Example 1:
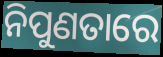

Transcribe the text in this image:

ନିପୁଣତାରେ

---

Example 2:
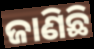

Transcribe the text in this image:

ଜାଣିଛି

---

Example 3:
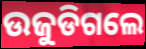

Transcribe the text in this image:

ଉଜୁଡିଗଲେ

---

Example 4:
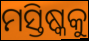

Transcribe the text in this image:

ମସ୍ତିଷ୍କକୁ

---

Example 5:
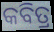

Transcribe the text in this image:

କବିତ୍ର